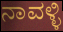
ನಾವಳ್ಳಿ